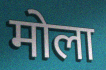
मोला